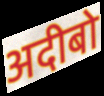
अदीबो